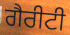
ਗੈਰੀਟੀ